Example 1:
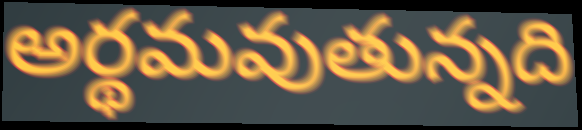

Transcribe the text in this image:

అర్థమవుతున్నది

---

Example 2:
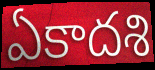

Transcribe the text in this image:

ఏకాదశి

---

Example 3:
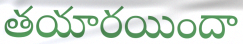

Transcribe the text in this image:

తయారయిందా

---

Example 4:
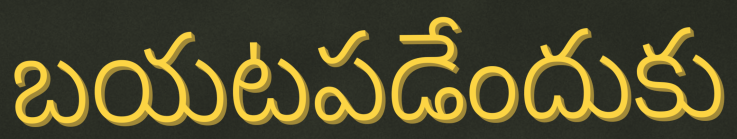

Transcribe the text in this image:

బయటపడేందుకు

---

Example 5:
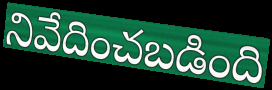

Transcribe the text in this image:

నివేదించబడింది